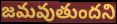
జమవుతుందని